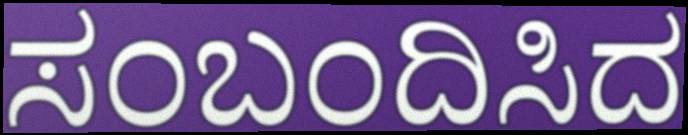
ಸಂಬಂದಿಸಿದ